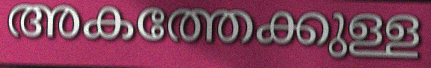
അകത്തേക്കുള്ള